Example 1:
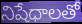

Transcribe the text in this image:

నిషేధాలతో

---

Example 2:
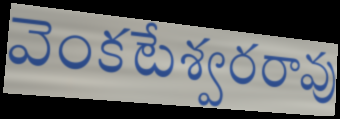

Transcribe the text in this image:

వెంకటేశ్వరరావు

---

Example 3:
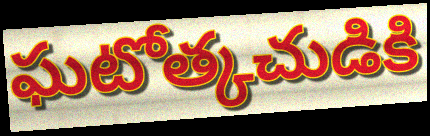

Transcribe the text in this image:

ఘటోత్కచుడికి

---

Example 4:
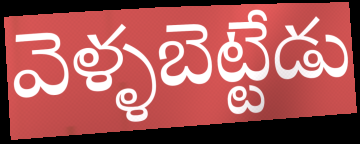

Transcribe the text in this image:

వెళ్ళబెట్టేడు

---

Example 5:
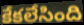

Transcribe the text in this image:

కేకలేసింది